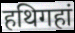
हथिगहां